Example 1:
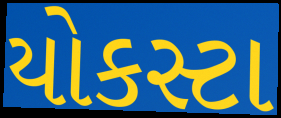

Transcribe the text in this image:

યોકસ્ટા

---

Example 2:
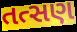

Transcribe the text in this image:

તત્સણ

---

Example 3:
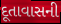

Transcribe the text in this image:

દૂતાવાસની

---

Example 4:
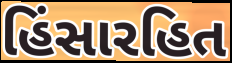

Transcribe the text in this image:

હિંસારહિત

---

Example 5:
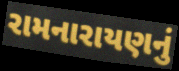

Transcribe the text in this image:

રામનારાયણનું